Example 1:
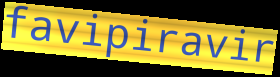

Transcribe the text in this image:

favipiravir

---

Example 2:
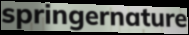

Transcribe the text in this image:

springernature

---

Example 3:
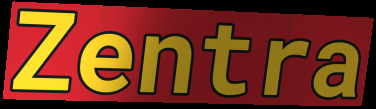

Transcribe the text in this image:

Zentra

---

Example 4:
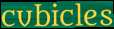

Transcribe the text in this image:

cubicles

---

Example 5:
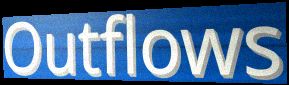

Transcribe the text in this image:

Outflows